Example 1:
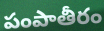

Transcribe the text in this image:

పంపాతీరం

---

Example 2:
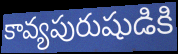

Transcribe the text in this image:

కావ్యపురుషుడికి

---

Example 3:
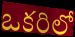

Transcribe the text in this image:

ఒకరిలో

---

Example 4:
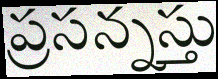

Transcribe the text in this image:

ప్రసన్నస్తు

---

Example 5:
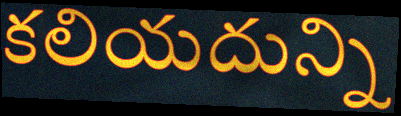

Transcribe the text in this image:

కలియదున్ని